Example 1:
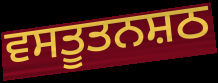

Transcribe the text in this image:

ਵਸਤੂਤਨਸ਼ਠ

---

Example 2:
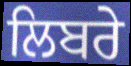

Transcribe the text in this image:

ਲਿਬਰੇ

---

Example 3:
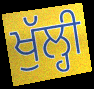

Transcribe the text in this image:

ਖੁੱਲ੍ਹੀ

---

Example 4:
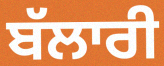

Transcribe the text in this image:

ਬੱਲਾਰੀ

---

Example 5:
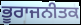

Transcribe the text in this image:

ਭੂਰਾਜਨੀਤਕ